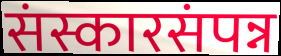
संस्कारसंपन्न